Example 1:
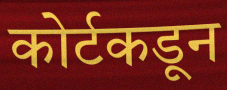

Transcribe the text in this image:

कोर्टकडून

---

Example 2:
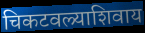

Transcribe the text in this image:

चिकटवल्याशिवाय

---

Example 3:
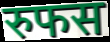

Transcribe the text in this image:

रुफस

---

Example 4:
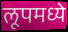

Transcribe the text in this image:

लूपमध्ये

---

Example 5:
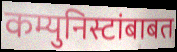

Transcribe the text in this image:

कम्युनिस्टांबाबत